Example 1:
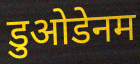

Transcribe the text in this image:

डुओडेनम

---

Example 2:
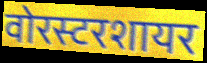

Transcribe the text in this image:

वोरस्टरशायर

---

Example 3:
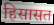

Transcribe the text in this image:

हिसासत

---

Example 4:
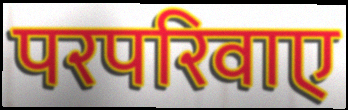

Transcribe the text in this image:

परपरिवाए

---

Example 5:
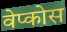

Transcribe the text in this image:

वेप्कोस